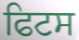
ਫਿਟਸ